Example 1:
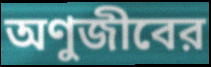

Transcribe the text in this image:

অণুজীবের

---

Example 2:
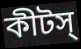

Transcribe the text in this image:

কীটস্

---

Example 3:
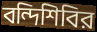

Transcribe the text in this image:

বন্দিশিবির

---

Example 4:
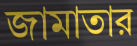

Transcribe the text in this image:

জামাতার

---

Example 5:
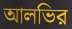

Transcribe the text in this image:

আলভির